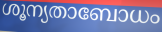
ശൂന്യതാബോധം